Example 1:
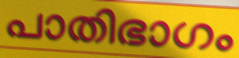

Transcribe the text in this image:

പാതിഭാഗം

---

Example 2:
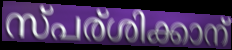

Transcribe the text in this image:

സ്പര്ശിക്കാന്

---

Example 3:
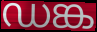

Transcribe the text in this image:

ഡങ്ക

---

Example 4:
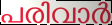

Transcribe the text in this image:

പരിവാർ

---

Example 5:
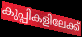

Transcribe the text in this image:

കുപ്പികളിലേക്ക്